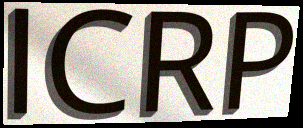
ICRP